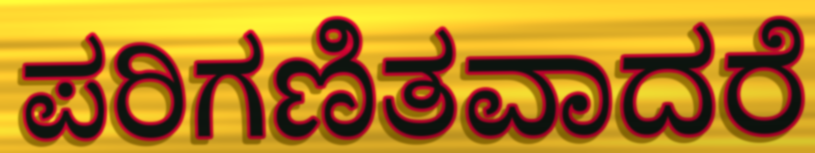
ಪರಿಗಣಿತವಾದರೆ